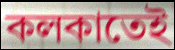
কলকাতেই